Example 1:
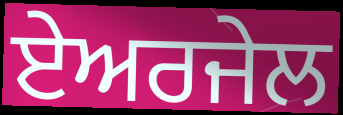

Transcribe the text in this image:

ਏਅਰਜੇਲ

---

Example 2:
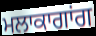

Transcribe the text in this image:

ਮਲਾਕਾਗਾਂਗ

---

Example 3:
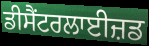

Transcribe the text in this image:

ਡੀਸੈਂਟਰਲਾਈਜ਼ਡ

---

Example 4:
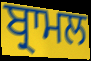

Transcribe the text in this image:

ਬ੍ਰਾਮਲ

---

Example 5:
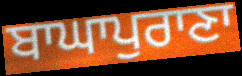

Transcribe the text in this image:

ਬਾਘਾਪੁਰਾਣਾ